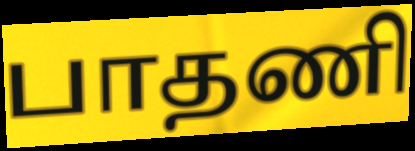
பாதணி